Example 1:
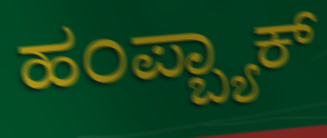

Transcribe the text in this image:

ಹಂಪ್ಬ್ಯಾಕ್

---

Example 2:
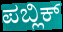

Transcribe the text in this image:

ಪಬ್ಲಿಕ್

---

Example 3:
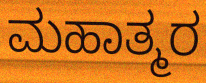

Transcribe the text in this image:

ಮಹಾತ್ಮರ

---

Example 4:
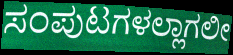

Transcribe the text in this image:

ಸಂಪುಟಗಳಲ್ಲಾಗಲೀ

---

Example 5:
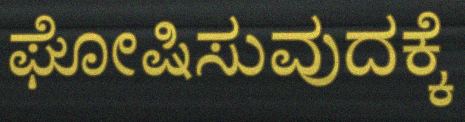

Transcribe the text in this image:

ಘೋಷಿಸುವುದಕ್ಕೆ